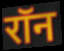
रॉन